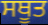
ਸਥੂਤ